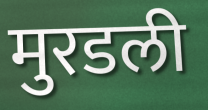
मुरडली